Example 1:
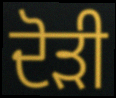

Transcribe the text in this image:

ਦੋੜੀ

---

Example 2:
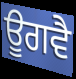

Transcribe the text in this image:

ਊਗਵੈ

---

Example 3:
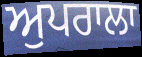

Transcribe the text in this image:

ਅੁਪਰਾਲਾ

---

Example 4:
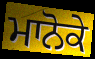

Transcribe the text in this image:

ਮਾਨੋਕੇ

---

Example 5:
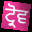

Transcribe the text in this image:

ਟ੍ਰੋਵ